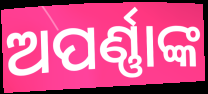
ଅପର୍ଣ୍ଣାଙ୍କ